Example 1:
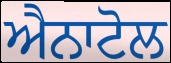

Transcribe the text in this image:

ਐਨਾਟੋਲ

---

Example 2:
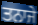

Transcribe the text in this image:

ਤਨਾਜੇ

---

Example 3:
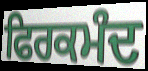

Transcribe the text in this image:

ਫਿਰਕਮੰਦ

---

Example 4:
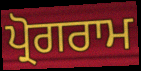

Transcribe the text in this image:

ਪ੍ਰ੍ਰੋਗਰਾਮ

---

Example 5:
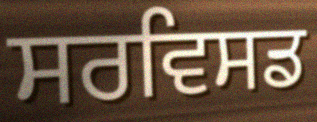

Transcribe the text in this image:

ਸਰਵਿਸਡ